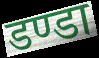
डण्डा